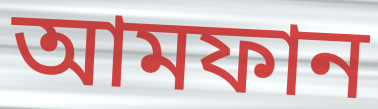
আমফান